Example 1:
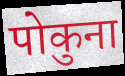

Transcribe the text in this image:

पोकुना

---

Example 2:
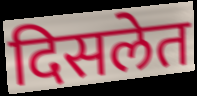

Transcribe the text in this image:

दिसलेत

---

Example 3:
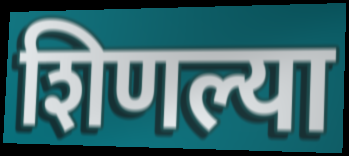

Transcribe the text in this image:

शिणल्या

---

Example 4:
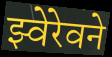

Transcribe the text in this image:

झ्वेरेवने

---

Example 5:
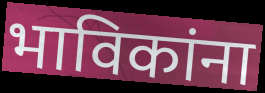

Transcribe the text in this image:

भाविकांना